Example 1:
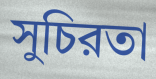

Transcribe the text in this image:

সুচিরতা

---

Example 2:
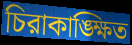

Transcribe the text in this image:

চিরাকাঙ্ক্ষিত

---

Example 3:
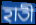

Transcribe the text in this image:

হাতী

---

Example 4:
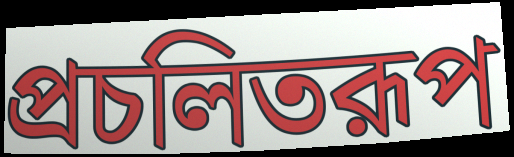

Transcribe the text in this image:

প্রচলিতরূপ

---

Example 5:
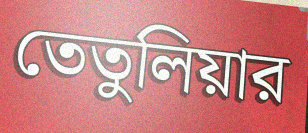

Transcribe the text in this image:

তেতুলিয়ার